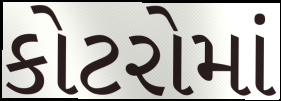
કોટરોમાં